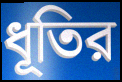
ধূতির